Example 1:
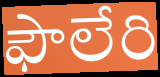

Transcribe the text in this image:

ఫౌలేరి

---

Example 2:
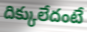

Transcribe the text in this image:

దిక్కులేదంటే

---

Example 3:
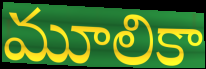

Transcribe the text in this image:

మూలికా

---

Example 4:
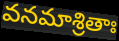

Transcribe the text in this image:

వనమాశ్రితాః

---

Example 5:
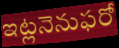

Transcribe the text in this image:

ఇట్లనెనుఫరో